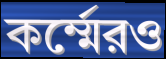
কর্ম্মেরও